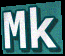
Mk